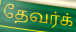
தேவர்க்